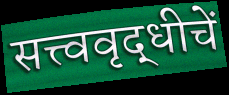
सत्त्ववृद्धीचें